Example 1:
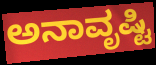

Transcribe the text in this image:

ಅನಾವೃಷ್ಟಿ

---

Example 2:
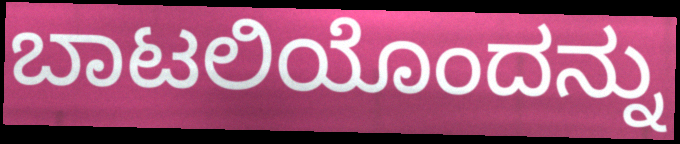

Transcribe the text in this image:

ಬಾಟಲಿಯೊಂದನ್ನು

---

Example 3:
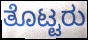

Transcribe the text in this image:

ತೊಟ್ಟರು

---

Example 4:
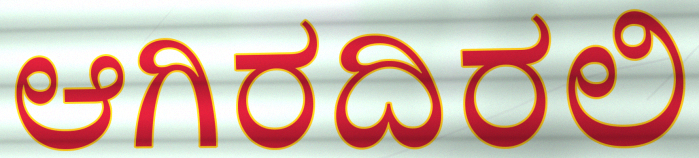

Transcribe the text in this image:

ಆಗಿರದಿರಲಿ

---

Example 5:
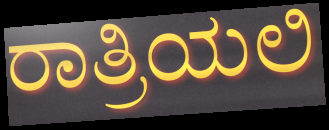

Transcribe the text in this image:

ರಾತ್ರಿಯಲಿ